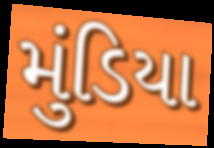
મુંડિયા